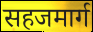
सहजमार्ग